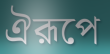
ঐরূপে